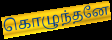
கொழுந்தனே